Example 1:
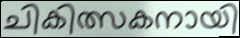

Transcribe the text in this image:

ചികിത്സകനായി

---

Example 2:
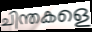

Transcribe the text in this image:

ചിന്തകളെ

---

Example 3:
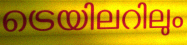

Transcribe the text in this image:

ട്രെയിലറിലും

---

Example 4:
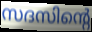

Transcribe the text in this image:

സദസിന്റെ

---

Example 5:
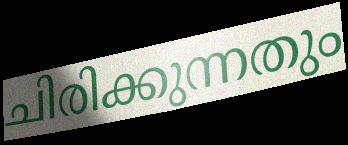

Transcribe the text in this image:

ചിരിക്കുന്നതും